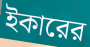
ইকারের